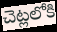
చెట్లలోకి